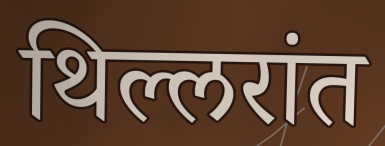
थिल्लरांत